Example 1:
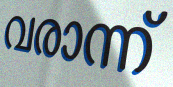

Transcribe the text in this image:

വരാന്ന്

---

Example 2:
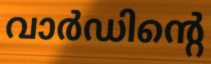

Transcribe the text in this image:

വാർഡിന്റെ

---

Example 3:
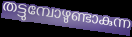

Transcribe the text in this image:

തട്ടുമ്പോഴുണ്ടാകുന്ന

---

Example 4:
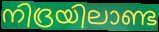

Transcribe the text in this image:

നിദ്രയിലാണ്ട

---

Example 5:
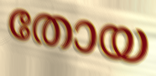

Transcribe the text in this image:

തോയ